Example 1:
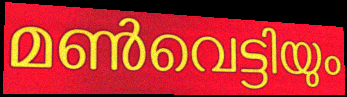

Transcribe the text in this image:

മൺവെട്ടിയും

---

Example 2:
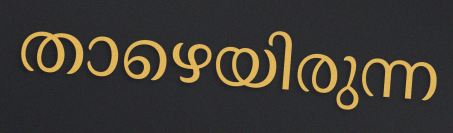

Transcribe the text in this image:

താഴെയിരുന്ന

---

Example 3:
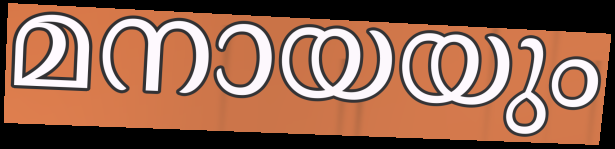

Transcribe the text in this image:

മനായയും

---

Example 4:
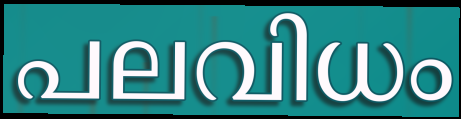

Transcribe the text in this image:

പലവിധം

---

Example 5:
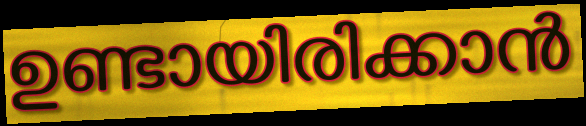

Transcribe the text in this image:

ഉണ്ടായിരിക്കാൻ